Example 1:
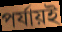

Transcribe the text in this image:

পর্যায়ই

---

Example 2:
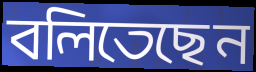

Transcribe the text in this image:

বলিতেছেন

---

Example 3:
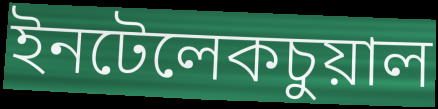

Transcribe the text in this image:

ইনটেলেকচুয়াল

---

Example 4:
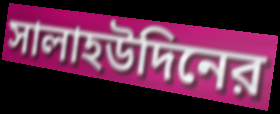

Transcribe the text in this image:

সালাহউদিনের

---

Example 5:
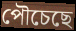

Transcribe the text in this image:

পৌচেছে